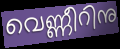
വെണ്ണീറിനു